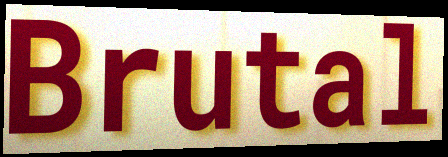
Brutal